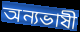
অন্যভাষী